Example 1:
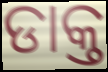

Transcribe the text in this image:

ଡାକ୍ତ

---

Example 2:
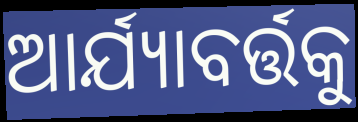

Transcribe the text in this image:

ଆର୍ଯ୍ୟାବର୍ତ୍ତକୁ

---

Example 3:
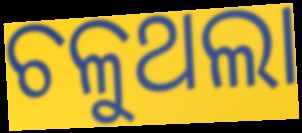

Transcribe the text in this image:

ଚଳୁଥଲା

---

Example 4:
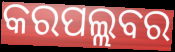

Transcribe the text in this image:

କରପଲ୍ଲବର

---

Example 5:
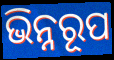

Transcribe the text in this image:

ଭିନ୍ନରୂପ